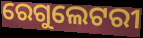
ରେଗୁଲେଟରୀ